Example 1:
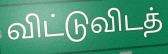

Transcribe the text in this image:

விட்டுவிடத்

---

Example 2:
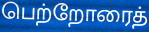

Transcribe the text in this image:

பெற்றோரைத்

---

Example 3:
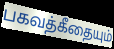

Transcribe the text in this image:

பகவத்கீதையும்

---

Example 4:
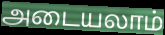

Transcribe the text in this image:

அடையலாம்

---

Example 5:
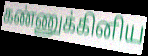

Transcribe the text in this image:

கண்ணுக்கினிய